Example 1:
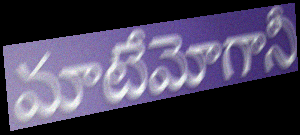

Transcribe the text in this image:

మాటేమోగానీ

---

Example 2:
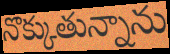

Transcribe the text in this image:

నొక్కుతున్నాను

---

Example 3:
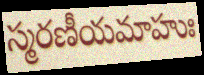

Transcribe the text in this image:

స్మరణీయమాహుః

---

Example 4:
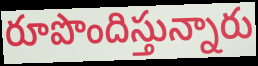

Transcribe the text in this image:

రూపొందిస్తున్నారు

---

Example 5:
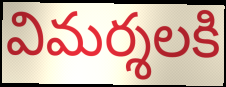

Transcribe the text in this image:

విమర్శలకి